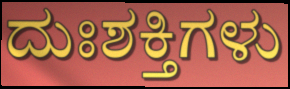
ದುಃಶಕ್ತಿಗಳು